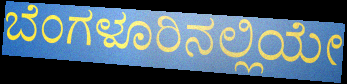
ಬೆಂಗಳೂರಿನಲ್ಲಿಯೇ